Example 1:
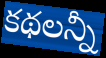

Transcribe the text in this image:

కథలన్నీ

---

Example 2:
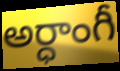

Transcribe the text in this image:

అర్ధాంగీ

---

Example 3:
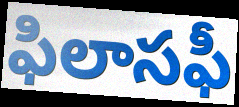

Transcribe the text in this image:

ఫిలాసఫీ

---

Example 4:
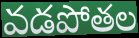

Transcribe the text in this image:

వడపోతల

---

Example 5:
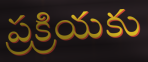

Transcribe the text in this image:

ప్రక్రియకు